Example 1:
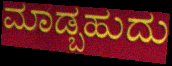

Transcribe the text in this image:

ಮಾಡ್ಬಹುದು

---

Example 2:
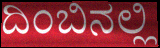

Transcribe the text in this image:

ದಿಂಬಿನಲ್ಲಿ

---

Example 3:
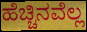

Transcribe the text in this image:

ಹೆಚ್ಚಿನವೆಲ್ಲ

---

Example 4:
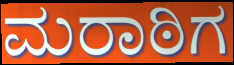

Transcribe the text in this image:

ಮರಾಠಿಗ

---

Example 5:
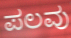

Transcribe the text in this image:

ಪಲವು